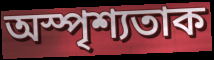
অস্পৃশ্যতাক